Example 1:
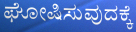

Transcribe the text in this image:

ಘೋಷಿಸುವುದಕ್ಕೆ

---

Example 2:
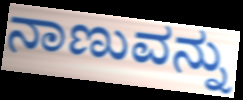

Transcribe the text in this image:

ನಾಣುವನ್ನು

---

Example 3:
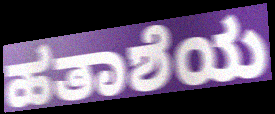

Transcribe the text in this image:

ಹತಾಶೆಯ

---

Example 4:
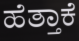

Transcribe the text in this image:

ಹೆತ್ತಾಕೆ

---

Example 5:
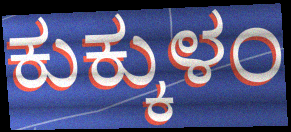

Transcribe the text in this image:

ಕುಕ್ಕುಳಂ